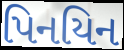
પિનયિન